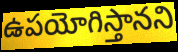
ఉపయోగిస్తానని